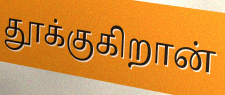
தூக்குகிறான்